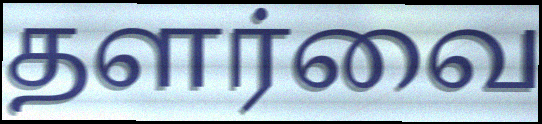
தளர்வை